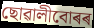
ছোৱালীবোৰৰ